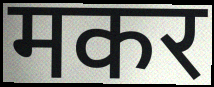
मकर